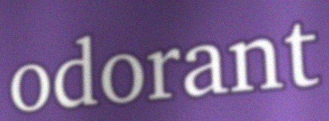
odorant